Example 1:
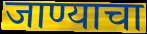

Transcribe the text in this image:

जाण्‍याचा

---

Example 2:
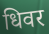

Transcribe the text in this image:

धिवर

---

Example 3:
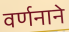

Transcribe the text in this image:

वर्णनाने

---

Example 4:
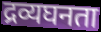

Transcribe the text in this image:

द्रव्यघनता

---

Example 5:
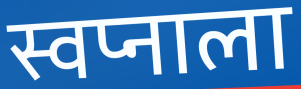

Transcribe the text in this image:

स्वप्नाला